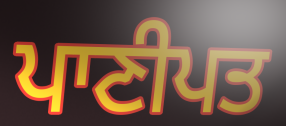
ਪਾਣੀਪਤ